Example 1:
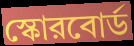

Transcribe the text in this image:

স্কোরবোর্ড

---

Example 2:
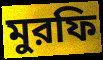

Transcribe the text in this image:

মুরফি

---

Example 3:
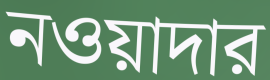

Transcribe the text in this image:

নওয়াদার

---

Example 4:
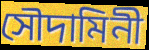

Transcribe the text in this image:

সৌদামিনী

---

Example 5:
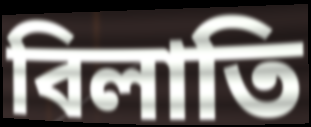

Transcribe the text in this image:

বিলাতি